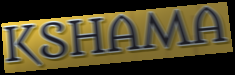
KSHAMA